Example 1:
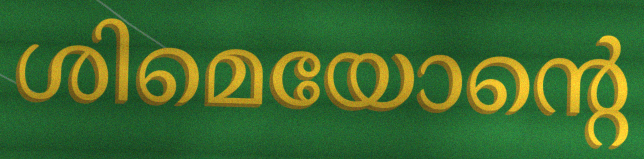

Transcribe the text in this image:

ശിമെയോന്റെ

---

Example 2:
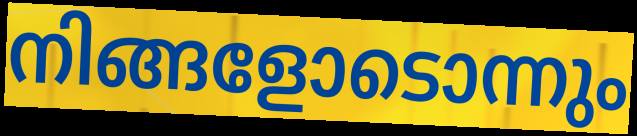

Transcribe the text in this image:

നിങ്ങളോടൊന്നും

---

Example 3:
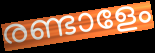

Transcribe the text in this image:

രണ്ടാളേം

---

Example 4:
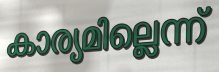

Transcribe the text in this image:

കാര്യമില്ലെന്ന്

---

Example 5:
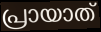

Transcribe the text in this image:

പ്രായാത്